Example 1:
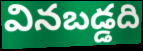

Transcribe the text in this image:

వినబడ్డది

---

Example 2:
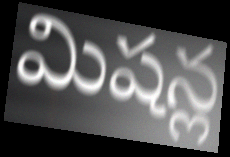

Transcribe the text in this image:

మిషన్ల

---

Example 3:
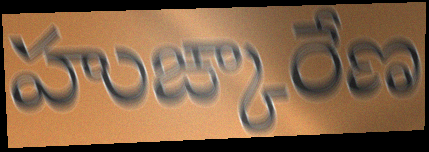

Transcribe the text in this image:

హుఙ్కారేణ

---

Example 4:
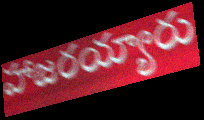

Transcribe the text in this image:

హాజరయ్యారు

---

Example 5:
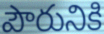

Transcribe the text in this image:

పౌరునికి